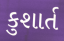
કુશાર્ત